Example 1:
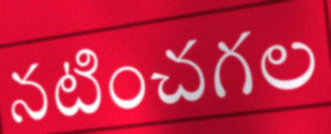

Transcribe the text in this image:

నటించగల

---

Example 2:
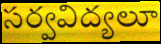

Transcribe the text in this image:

సర్వవిద్యలూ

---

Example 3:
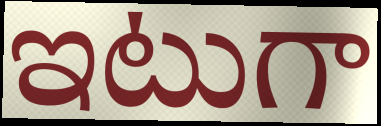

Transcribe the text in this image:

ఇటుగా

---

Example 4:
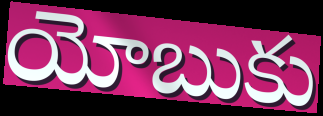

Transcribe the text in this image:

యోబుకు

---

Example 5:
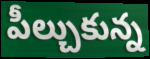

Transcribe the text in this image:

పీల్చుకున్న